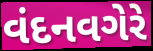
વંદનવગેરે